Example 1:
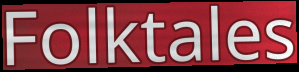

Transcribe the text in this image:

Folktales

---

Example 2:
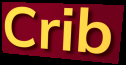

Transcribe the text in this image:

Crib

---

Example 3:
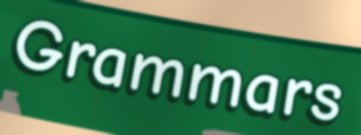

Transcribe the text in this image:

Grammars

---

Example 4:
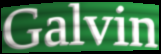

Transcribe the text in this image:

Galvin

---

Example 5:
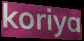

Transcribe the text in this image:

koriya